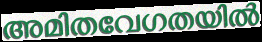
അമിതവേഗതയിൽ